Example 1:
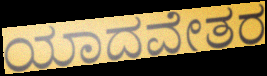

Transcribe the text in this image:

ಯಾದವೇತರ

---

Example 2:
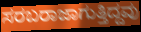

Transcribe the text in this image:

ಸರಬರಾಜಾಗುತ್ತಿದ್ದವು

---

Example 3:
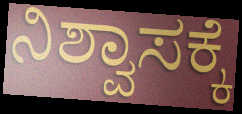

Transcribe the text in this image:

ನಿಶ್ವಾಸಕ್ಕೆ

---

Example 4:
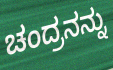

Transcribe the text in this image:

ಚಂದ್ರನನ್ನು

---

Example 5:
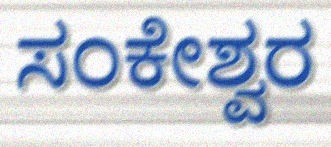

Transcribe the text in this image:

ಸಂಕೇಶ್ವರ